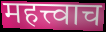
महत्त्वाच